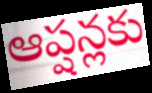
ఆప్షన్లకు